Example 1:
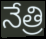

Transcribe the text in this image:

నేత్రి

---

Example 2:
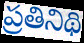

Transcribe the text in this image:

ప్రతినిథి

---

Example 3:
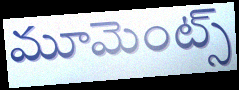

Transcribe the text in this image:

మూమెంట్స్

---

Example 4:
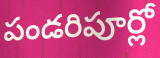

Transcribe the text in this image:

పండరిపూర్లో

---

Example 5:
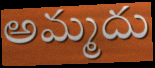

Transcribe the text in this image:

అమ్మదు